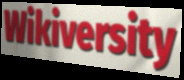
Wikiversity